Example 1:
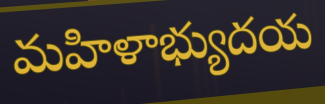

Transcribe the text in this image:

మహిళాభ్యుదయ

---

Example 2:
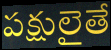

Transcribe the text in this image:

పక్షులైతే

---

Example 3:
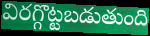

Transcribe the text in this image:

విరగ్గొట్టబడుతుంది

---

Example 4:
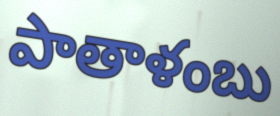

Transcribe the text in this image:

పాతాళంబు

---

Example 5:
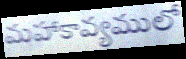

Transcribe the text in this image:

మహాకావ్యములో